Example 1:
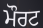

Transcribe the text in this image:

ਮੌਰਟ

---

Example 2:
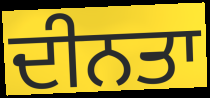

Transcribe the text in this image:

ਦੀਨਤਾ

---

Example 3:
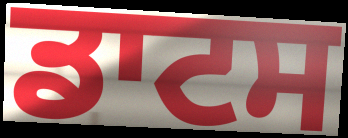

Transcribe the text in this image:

ਡਾਟਸ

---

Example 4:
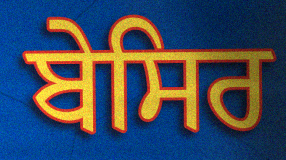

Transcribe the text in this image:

ਬੇਸਿਰ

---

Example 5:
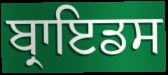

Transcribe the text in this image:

ਬ੍ਰਾਇਡਸ